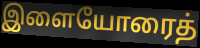
இளையோரைத்